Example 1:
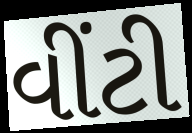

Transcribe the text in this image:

વીંટી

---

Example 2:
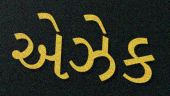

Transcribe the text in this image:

એઝેક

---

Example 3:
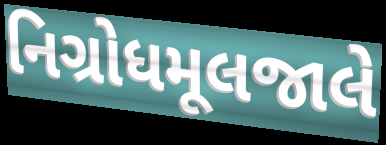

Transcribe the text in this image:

નિગ્રોધમૂલજાલે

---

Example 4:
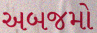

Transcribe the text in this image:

અબજમો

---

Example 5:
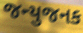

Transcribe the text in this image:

જન્યુજનક